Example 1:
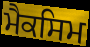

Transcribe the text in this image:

ਮੈਕਸਿਮ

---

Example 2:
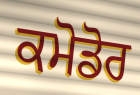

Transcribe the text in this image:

ਕਮੋਡੋਰ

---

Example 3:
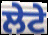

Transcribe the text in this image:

ਲੇਟੇ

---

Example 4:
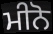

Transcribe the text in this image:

ਮੀਨੋ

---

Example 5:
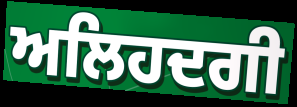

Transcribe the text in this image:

ਅਲਿਹਦਗੀ